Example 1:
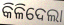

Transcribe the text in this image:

କିଳିଦେଲା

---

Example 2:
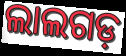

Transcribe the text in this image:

ଲାଲଗଡ଼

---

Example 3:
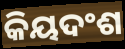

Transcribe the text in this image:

କିୟଦଂଶ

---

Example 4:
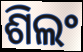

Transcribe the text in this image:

ଶିଲଂ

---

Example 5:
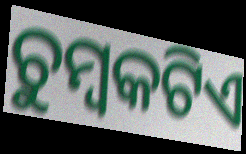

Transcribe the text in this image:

ଚୁମ୍ବକଟିଏ